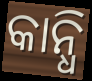
କାନ୍ଧି